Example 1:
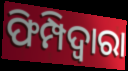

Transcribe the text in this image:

ଫିମ୍ପିଦ୍ଵାରା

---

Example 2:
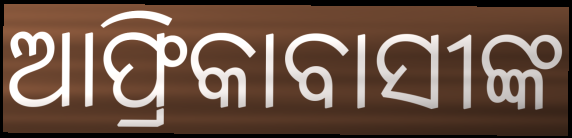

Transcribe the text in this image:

ଆଫ୍ରିକାବାସୀଙ୍କ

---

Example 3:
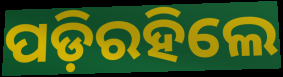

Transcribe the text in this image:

ପଡ଼ିରହିଲେ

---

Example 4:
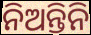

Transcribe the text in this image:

ନିଅନ୍ତିନି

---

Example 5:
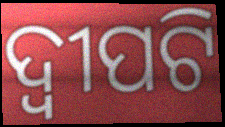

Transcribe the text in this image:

ଦ୍ୱୀପଟି